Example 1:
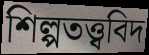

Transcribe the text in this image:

শিল্পতত্ত্ববিদ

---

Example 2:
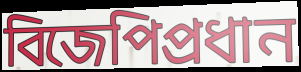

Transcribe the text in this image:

বিজেপিপ্রধান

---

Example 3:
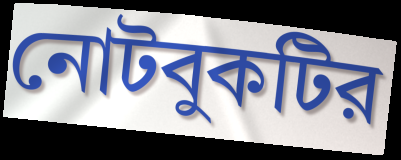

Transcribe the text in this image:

নোটবুকটির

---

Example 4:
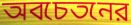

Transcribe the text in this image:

অবচেতনের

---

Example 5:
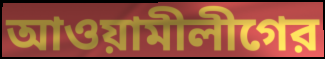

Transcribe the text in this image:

আওয়ামীলীগের